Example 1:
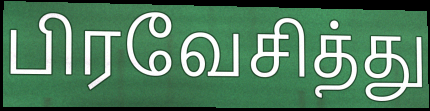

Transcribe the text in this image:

பிரவேசித்து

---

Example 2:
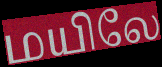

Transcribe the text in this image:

மயிலே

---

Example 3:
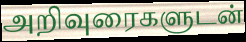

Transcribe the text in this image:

அறிவுரைகளுடன்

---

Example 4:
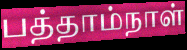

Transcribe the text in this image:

பத்தாம்நாள்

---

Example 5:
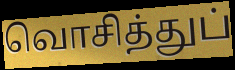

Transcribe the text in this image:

வொசித்துப்